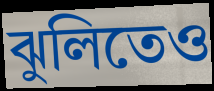
ঝুলিতেও